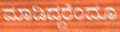
ಮಾಡಿದ್ದರೆಂದೂ